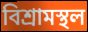
বিশ্রামস্থল